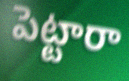
పెట్టారా